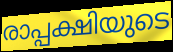
രാപ്പക്ഷിയുടെ